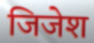
जिजेश